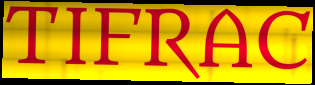
TIFRAC